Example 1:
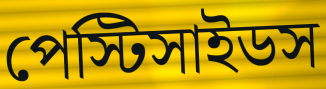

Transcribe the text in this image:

পেস্টিসাইডস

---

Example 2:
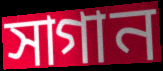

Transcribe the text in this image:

সাগান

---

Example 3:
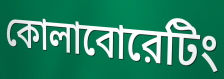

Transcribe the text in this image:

কোলাবোরেটিং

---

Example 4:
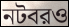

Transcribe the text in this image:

নটবরও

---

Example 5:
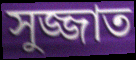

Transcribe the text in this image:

সুজ্জাত